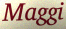
Maggi